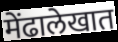
मेंढालेखात